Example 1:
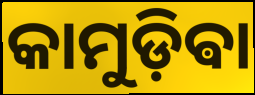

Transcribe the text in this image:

କାମୁଡ଼ିଵା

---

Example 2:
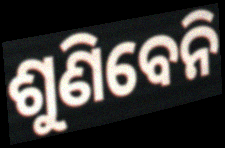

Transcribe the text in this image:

ଶୁଣିବେନି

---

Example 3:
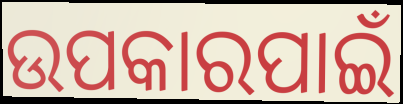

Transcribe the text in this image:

ଉପକାରପାଇଁ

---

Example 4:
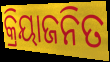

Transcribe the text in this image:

କ୍ରିୟାଜନିତ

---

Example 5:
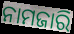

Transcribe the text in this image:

ନାମଜାରି